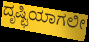
ದೃಷ್ಟಿಯಾಗಲೀ